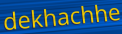
dekhachhe